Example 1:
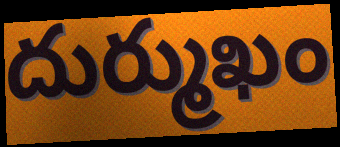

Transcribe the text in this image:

దుర్ముఖం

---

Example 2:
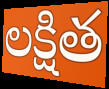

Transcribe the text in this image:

లక్షిత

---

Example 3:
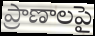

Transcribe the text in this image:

ప్రాణాలపై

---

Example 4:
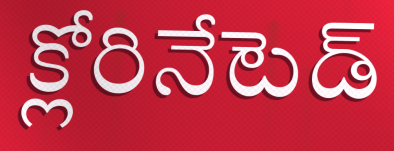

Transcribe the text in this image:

క్లోరినేటెడ్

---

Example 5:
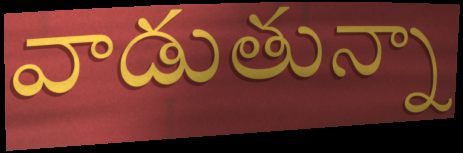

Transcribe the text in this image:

వాడుతున్నా